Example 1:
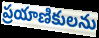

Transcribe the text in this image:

ప్రయాణికులను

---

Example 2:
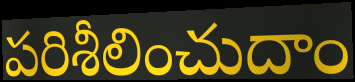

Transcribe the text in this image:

పరిశీలించుదాం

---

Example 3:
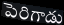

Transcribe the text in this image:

పెరిగాడు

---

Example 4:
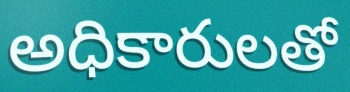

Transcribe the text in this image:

అధికారులతో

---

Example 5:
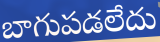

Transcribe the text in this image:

బాగుపడలేదు